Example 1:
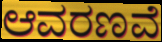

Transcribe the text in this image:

ಆವರಣವೆ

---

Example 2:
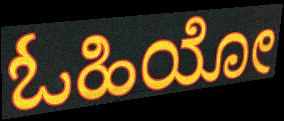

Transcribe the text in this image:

ಓಹಿಯೋ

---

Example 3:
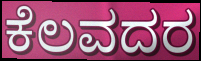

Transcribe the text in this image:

ಕೆಲವದರ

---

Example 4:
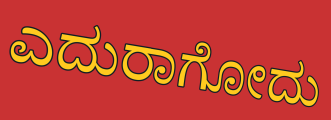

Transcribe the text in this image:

ಎದುರಾಗೋದು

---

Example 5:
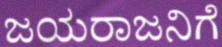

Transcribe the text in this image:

ಜಯರಾಜನಿಗೆ